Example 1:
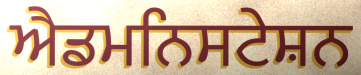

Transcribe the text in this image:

ਐਡਮਨਿਸਟੇਸ਼ਨ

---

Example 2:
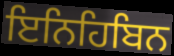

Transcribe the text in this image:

ਇਨਿਹਿਬਿਨ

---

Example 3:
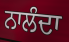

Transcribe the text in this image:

ਨਾਲੰਦਾ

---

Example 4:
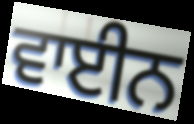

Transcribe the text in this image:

ਵਾਈਨ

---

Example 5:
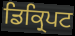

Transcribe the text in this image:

ਡਿਕ੍ਰਿਪਟ